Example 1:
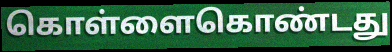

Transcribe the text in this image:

கொள்ளைகொண்டது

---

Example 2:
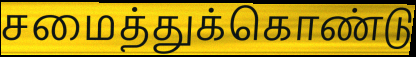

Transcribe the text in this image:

சமைத்துக்கொண்டு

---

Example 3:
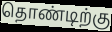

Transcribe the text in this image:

தொண்டிற்கு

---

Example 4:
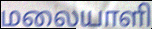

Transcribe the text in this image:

மலையாளி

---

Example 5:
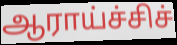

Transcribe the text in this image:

ஆராய்ச்சிச்